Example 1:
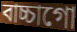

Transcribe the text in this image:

বাচ্চাগো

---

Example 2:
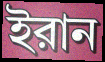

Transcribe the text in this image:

ইরান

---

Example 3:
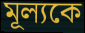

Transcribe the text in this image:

মূল্যকে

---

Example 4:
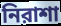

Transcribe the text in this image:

নিরাশা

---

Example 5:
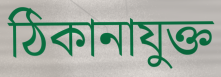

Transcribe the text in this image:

ঠিকানাযুক্ত